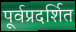
पूर्वप्रदर्शित